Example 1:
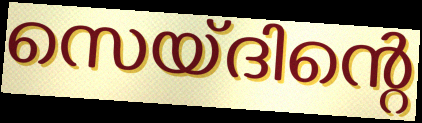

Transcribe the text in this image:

സെയ്ദിന്റെ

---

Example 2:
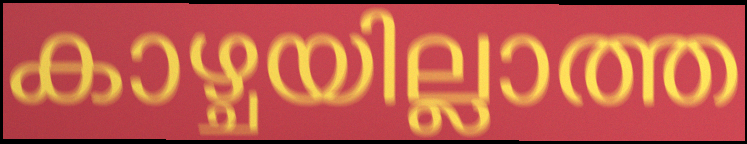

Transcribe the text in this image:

കാഴ്ചയില്ലാത്ത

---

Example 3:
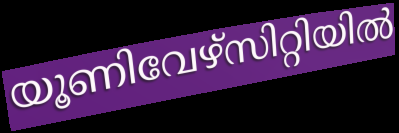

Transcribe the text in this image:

യൂണിവേഴ്സിറ്റിയിൽ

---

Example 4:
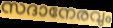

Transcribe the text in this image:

സദാനേരവും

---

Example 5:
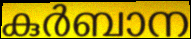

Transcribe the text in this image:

കുർബാന